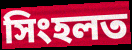
সিংহলত